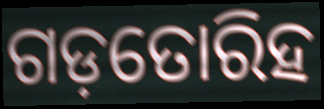
ଗଡ଼ତୋରିହ